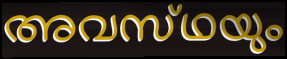
അവസ്‌ഥയും